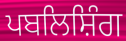
ਪਬਲਿਸ਼ਿੰਗ